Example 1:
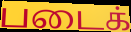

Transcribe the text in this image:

படைக்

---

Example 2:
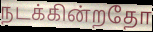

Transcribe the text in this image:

நடக்கின்றதோ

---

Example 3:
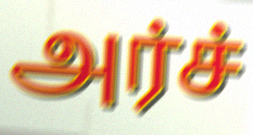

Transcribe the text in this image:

அர்ச்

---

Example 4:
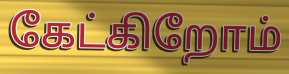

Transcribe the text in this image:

கேட்கிறோம்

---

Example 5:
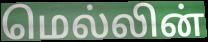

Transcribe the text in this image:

மெல்லின்